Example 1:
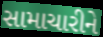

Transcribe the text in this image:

સામાચારીને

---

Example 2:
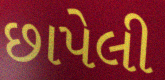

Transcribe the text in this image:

છાપેલી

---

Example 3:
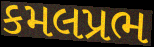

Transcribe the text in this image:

કમલપ્રભ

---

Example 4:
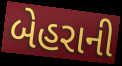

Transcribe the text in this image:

બેહરાની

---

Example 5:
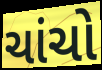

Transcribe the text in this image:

ચાંચો